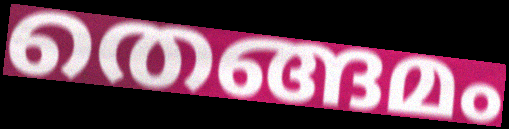
തെങ്ങമം